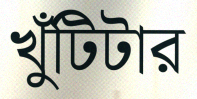
খুঁটিটার